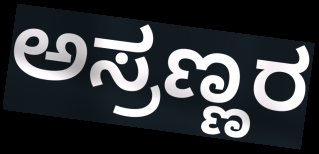
ಅಸ್ರಣ್ಣರ